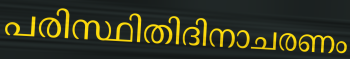
പരിസ്ഥിതിദിനാചരണം